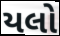
યલો